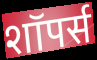
शॉपर्स